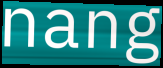
nang